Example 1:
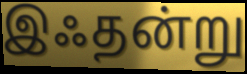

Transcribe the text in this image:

இஃதன்று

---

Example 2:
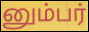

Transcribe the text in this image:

னும்பர்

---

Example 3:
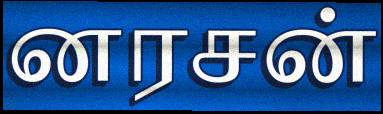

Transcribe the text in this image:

னரசன்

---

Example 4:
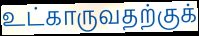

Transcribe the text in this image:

உட்காருவதற்குக்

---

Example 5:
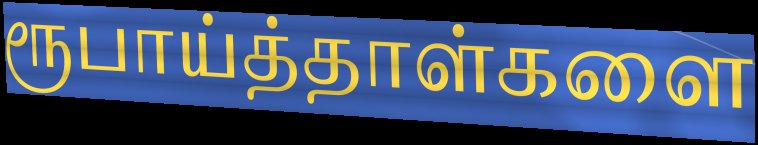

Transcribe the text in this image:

ரூபாய்த்தாள்களை